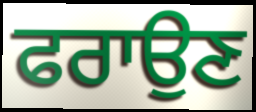
ਫਰਾਉਣ